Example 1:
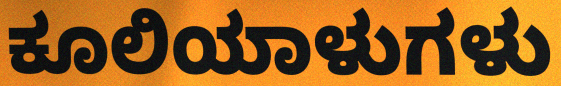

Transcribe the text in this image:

ಕೂಲಿಯಾಳುಗಳು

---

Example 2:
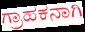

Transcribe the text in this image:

ಗ್ರಾಹಕನಾಗಿ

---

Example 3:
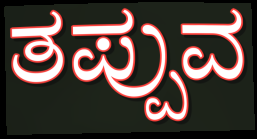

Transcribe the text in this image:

ತಪ್ಪುವ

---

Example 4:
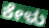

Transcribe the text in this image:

ಕೇಳು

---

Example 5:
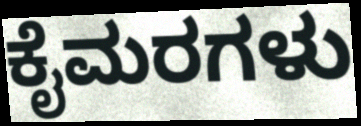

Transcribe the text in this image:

ಕೈಮರಗಳು